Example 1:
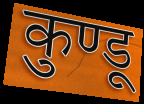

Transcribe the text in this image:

कुण्डू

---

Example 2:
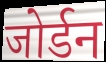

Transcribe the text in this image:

जोर्डन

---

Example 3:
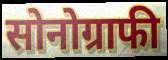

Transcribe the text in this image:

सोनोग्राफी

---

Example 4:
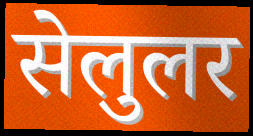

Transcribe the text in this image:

सेलुलर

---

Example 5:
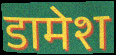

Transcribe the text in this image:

डामेश